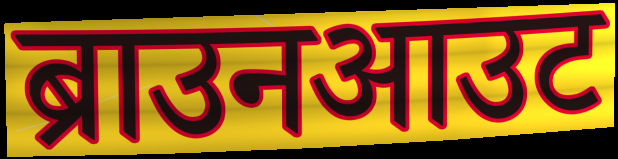
ब्राउनआउट